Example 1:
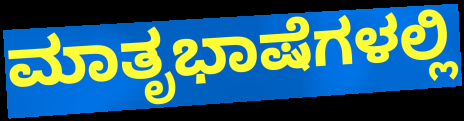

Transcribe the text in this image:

ಮಾತೃಭಾಷೆಗಳಲ್ಲಿ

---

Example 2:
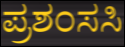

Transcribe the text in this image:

ಪ್ರಶಂಸಸಿ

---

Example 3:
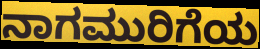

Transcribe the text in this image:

ನಾಗಮುರಿಗೆಯ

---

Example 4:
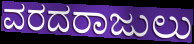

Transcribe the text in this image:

ವರದರಾಜುಲು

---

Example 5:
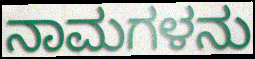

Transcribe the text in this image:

ನಾಮಗಳನು